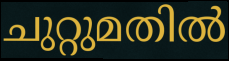
ചുറ്റുമതിൽ